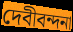
দেবীবন্দনা